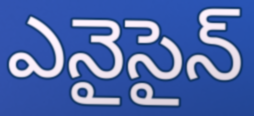
ఎనైసైన్